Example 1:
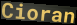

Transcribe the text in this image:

Cioran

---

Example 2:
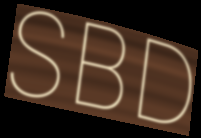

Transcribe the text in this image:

SBD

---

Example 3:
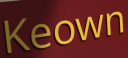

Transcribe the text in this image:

Keown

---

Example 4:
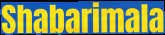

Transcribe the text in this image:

Shabarimala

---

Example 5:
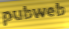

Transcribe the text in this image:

pubweb